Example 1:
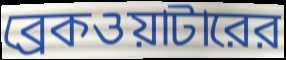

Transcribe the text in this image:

ব্রেকওয়াটারের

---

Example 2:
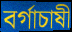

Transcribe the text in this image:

বর্গাচাষী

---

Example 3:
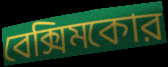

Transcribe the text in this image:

বেক্সিমকোর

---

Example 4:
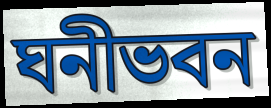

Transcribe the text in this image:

ঘনীভবন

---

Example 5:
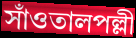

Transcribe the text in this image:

সাঁওতালপল্লী